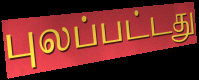
புலப்பட்டது